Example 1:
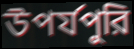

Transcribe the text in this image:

উপর্যপুরি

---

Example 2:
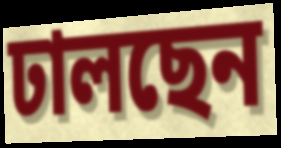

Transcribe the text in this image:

ঢালছেন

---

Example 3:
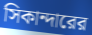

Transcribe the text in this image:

সিকান্দারের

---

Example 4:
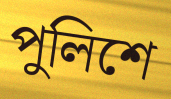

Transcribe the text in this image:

পুলিশে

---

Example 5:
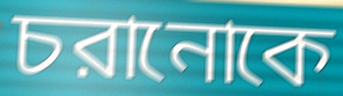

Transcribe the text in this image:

চরানোকে